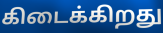
கிடைக்கிறது